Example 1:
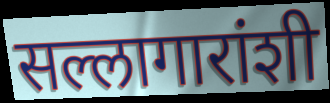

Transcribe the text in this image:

सल्लागारांशी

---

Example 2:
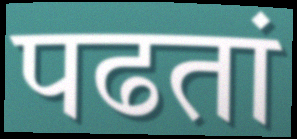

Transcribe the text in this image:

पढतां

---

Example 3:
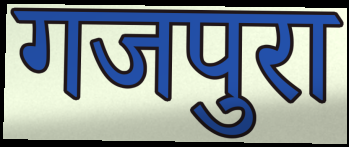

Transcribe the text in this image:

गजपुरा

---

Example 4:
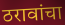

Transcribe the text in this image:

ठरावांचा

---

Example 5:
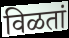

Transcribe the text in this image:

विळतां